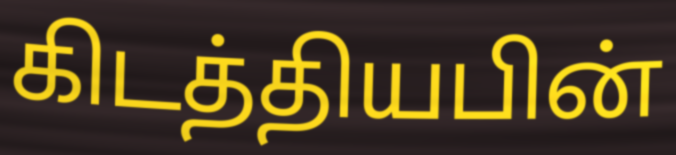
கிடத்தியபின்